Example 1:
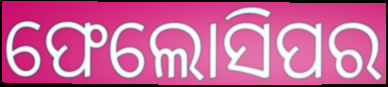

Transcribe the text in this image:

ଫେଲୋସିପର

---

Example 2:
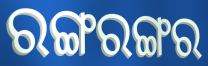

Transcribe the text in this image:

ରଙ୍ଗରଙ୍ଗର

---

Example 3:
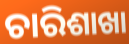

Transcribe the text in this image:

ଚାରିଶାଖା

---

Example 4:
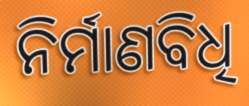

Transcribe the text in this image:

ନିର୍ମାଣବିଧି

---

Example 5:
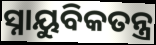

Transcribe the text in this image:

ସ୍ନାୟୁବିକତନ୍ତ୍ର